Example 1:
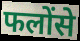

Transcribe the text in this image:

फलोंसे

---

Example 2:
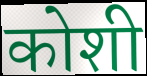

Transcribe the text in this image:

कोशी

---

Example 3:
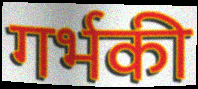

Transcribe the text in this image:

गर्भकी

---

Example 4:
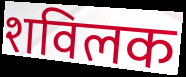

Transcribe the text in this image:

शविलक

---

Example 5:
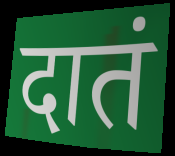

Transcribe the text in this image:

दातं